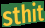
sthit